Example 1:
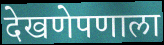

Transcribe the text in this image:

देखणेपणाला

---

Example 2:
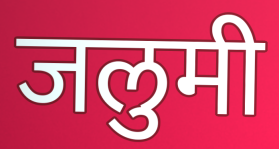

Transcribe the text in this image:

जलुमी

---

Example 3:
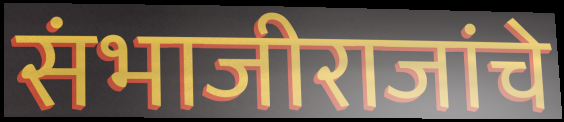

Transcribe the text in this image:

संभाजीराजांचे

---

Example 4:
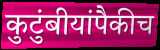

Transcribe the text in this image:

कुटुंबीयांपैकीच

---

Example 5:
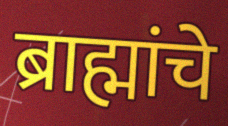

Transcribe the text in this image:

ब्राह्मांचे